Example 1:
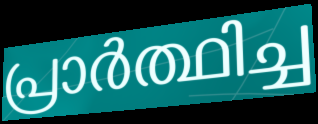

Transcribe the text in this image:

പ്രാർത്ഥിച്ച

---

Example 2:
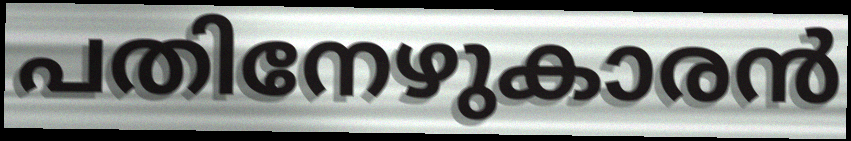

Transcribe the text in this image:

പതിനേഴുകാരൻ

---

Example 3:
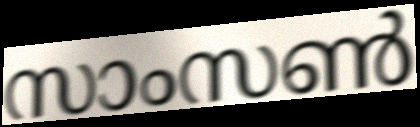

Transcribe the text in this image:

സാംസൺ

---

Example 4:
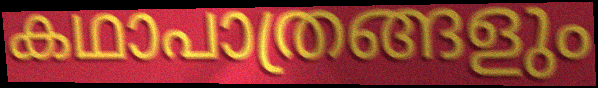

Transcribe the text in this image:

കഥാപാത്രങ്ങളും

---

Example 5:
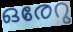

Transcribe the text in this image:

ഒരേറു